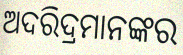
ଅଦରିଦ୍ରମାନଙ୍କର